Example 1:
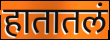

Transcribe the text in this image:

हातातलं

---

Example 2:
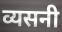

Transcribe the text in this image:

व्यसनी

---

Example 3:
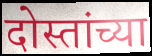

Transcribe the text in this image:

दोस्तांच्या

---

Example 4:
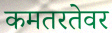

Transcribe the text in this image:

कमतरतेवर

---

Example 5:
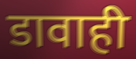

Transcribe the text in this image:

डावाही